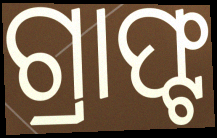
ଗ୍ରାଫ୍ଟ